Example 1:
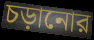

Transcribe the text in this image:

চড়ানোর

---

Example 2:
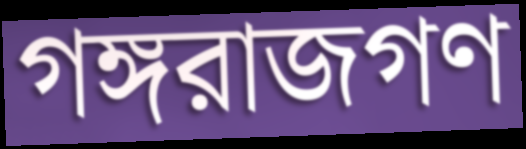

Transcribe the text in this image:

গঙ্গরাজগণ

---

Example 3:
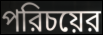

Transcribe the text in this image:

পরিচয়ের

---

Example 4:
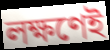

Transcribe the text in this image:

লক্ষণেই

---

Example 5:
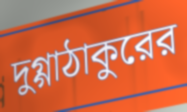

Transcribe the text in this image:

দুগ্গাঠাকুরের